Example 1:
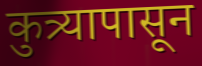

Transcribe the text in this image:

कुत्र्यापासून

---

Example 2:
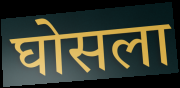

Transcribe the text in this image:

घोसला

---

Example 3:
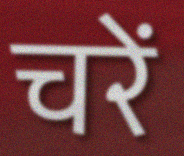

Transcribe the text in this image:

चरें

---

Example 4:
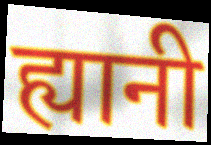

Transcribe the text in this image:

ह्यानी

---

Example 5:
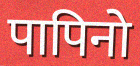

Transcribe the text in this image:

पापिनो